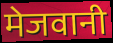
मेजवानी